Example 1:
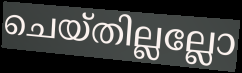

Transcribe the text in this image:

ചെയ്തില്ലല്ലോ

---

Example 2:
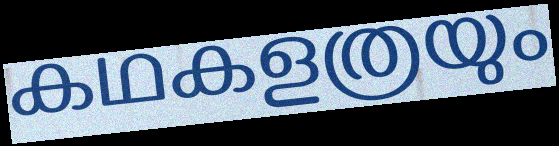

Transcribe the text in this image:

കഥകളത്രയും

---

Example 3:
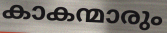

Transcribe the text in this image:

കാകന്മാരും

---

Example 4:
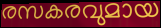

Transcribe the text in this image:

രസകരവുമായ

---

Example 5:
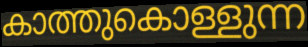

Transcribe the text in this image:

കാത്തുകൊള്ളുന്ന